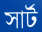
সার্ট